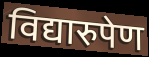
विद्यारुपेण